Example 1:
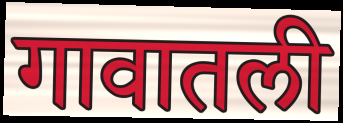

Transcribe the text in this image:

गावातली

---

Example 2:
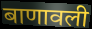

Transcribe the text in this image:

बाणावली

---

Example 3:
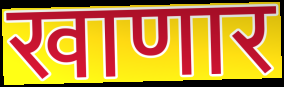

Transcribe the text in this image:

खाणार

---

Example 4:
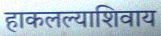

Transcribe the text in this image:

हाकलल्याशिवाय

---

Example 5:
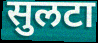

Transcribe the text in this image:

सुलटा